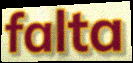
falta